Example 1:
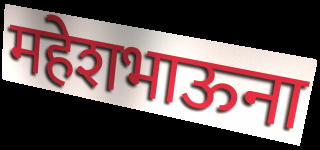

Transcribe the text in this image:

महेशभाऊना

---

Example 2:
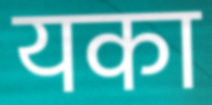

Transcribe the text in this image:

यका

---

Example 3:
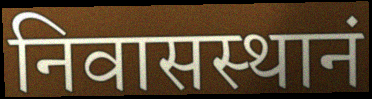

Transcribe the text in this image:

निवासस्थानं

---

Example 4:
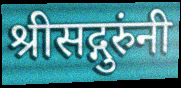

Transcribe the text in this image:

श्रीसद्गुरुंनी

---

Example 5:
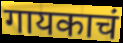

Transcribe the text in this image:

गायकाचं